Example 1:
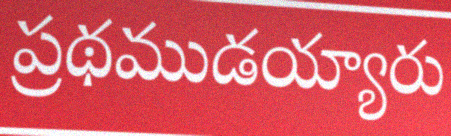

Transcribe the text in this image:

ప్రథముడయ్యారు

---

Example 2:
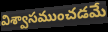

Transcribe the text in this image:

విశ్వాసముంచడమే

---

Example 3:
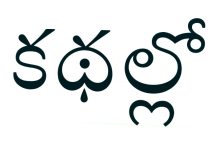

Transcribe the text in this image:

కథల్లో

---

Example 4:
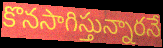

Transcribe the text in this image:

కొనసాగిస్తున్నారనే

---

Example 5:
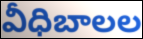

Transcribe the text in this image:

వీధిబాలల